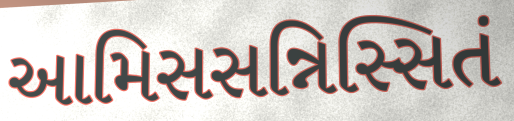
આમિસસન્નિસ્સિતં